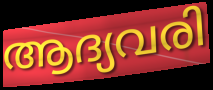
ആദ്യവരി